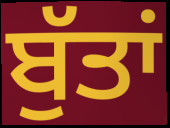
ਬੁੱਤਾਂ